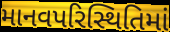
માનવપરિસ્થિતિમાં